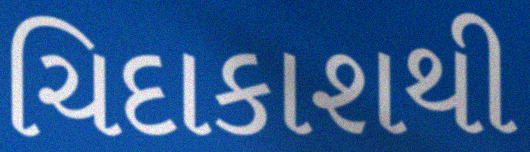
ચિદાકાશથી